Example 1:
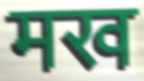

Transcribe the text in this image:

मख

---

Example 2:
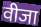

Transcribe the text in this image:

वीजा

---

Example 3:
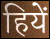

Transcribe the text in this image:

हियें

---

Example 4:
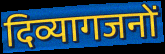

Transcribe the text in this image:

दिव्यागजनों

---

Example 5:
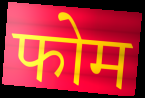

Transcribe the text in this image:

फोम